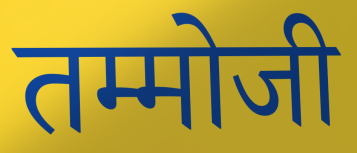
तम्मोजी